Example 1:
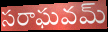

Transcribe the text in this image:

సరాఘవమ్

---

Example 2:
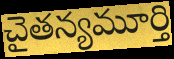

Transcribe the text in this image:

చైతన్యమూర్తి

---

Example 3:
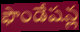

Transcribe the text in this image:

ఫౌండేషన్ల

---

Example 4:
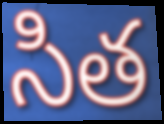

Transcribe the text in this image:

సిత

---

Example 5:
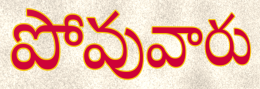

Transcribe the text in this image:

పోవువారు